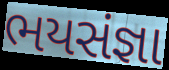
ભયસંજ્ઞા